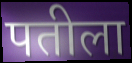
पतीला